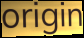
origin